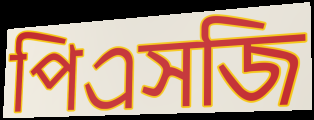
পিএসজি